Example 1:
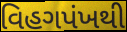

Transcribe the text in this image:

વિહગપંખથી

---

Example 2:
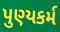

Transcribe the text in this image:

પુણ્યકર્મ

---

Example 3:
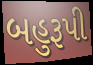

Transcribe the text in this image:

બહુરૂપી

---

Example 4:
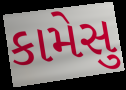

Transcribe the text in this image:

કામેસુ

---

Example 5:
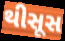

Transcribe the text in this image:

થીસૂસ